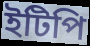
ইটিপি